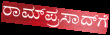
ರಾಮ್‌ಪ್ರಸಾದ್‌ಗೆ